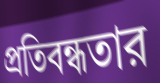
প্রতিবন্ধতার